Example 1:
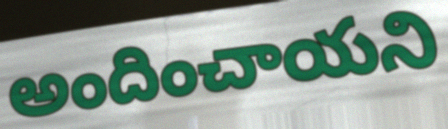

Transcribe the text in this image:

అందించాయని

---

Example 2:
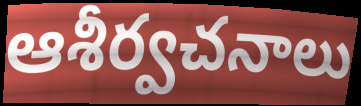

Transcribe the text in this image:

ఆశీర్వచనాలు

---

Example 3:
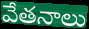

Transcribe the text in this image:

వేతనాలు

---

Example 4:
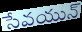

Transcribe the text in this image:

సేవయున్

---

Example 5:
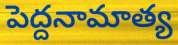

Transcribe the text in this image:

పెద్దనామాత్య